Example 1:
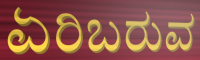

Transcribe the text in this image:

ಏರಿಬರುವ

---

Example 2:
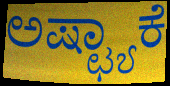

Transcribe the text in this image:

ಅಷ್ಟ್ಯಾಕೆ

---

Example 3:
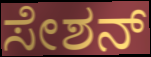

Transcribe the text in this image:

ಸೇಶನ್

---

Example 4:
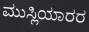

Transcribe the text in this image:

ಮುಸ್ಲಿಯಾರರ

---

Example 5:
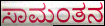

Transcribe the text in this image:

ಸಾಮಂತನ